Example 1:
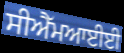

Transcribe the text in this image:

ਸੀਐੱਮਆਈਈ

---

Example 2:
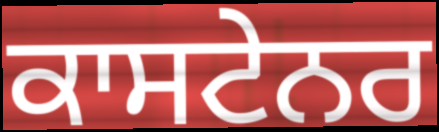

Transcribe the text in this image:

ਕਾਸਟੇਨਰ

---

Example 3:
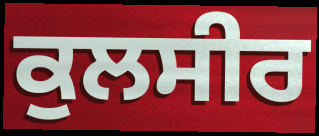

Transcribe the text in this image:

ਕੁਲਸੀਰ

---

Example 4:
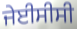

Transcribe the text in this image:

ਜੇਈਸੀਸੀ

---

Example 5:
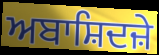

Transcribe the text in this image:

ਅਬਾਸ਼ਿਦਜ਼ੇ